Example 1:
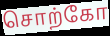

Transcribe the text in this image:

சொற்கோ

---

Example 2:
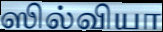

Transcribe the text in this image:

ஸில்வியா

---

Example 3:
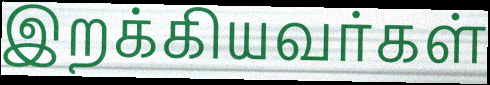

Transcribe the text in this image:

இறக்கியவர்கள்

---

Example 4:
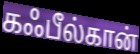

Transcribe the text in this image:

கஃபீல்கான்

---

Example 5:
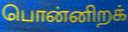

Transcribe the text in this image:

பொன்னிறக்